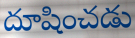
దూషించడు